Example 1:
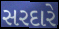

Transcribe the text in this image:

સરદારે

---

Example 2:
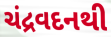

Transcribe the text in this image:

ચંદ્રવદનથી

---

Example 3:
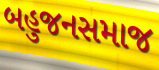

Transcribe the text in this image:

બહુજનસમાજ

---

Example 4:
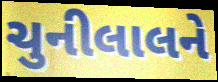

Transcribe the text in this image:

ચુનીલાલને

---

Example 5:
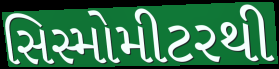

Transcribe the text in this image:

સિસ્મોમીટરથી